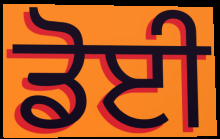
ਡੋਈ